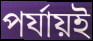
পর্যায়ই